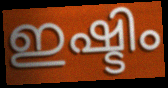
ഇഷ്ടിം